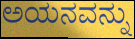
ಅಯನವನ್ನು